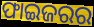
ଫାଇଜରର